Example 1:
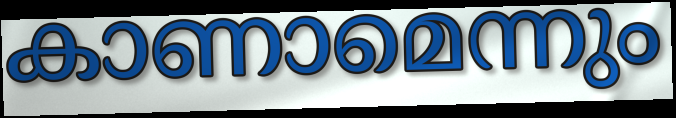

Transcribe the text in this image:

കാണാമെന്നും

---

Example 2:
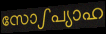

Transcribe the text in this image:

സോഽപ്യാഹ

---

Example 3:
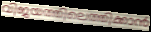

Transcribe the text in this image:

വിജയത്തിലെത്തിക്കാൻ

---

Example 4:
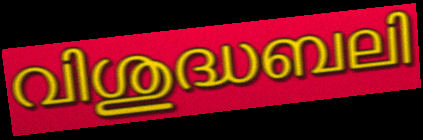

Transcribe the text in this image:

വിശുദ്ധബലി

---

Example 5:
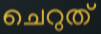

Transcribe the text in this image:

ചെറുത്